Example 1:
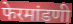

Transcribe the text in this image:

फेरमांडणी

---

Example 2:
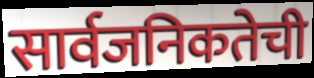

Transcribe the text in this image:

सार्वजनिकतेची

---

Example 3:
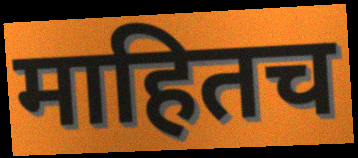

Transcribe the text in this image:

माहितच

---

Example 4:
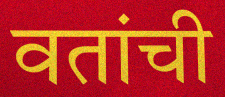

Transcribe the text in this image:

वतांची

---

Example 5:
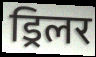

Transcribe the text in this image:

ड्रिलर